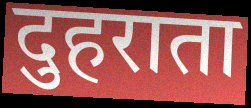
दुहराता